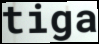
tiga